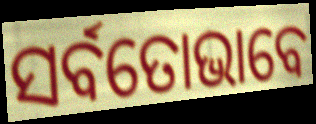
ସର୍ବତୋଭାବେ